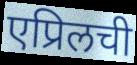
एप्रिलची